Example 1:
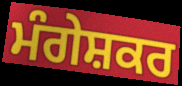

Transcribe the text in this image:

ਮੰਗੇਸ਼ਕਰ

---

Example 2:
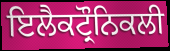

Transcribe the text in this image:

ਇਲੈਕਟ੍ਰੌਨਿਕਲੀ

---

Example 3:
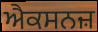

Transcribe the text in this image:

ਐਕਸਨਜ਼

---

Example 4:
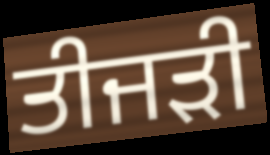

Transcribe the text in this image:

ਤੀਜੜੀ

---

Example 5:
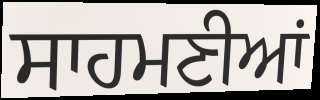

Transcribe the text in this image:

ਸਾਹਮਣੀਆਂ